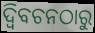
ଦ୍ବିବଚନଠାରୁ